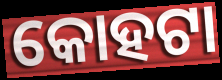
କୋହଟା